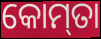
କୋମ୍‌ତା